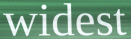
widest